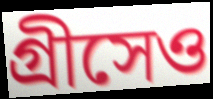
গ্রীসেও